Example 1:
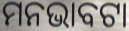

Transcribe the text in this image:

ମନଭାବଟା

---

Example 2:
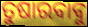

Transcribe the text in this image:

ତୁଷାରବାବୁ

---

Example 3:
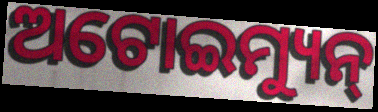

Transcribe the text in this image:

ଅଟୋଇମ୍ୟୁନ୍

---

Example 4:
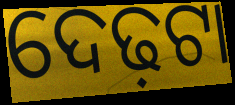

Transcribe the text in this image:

ଦେଢ଼ଟା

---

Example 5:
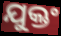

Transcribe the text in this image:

ଯୁକ୍ତଂ